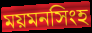
ময়মনসিংহ